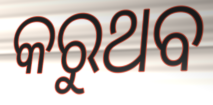
କରୁଥବ